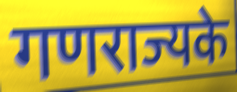
गणराज्यके